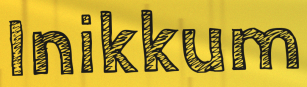
Inikkum